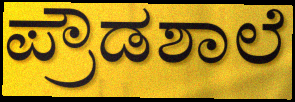
ಪ್ರೌಡಶಾಲೆ